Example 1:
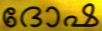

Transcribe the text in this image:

ദോഷ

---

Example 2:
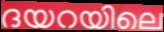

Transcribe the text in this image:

ദയറയിലെ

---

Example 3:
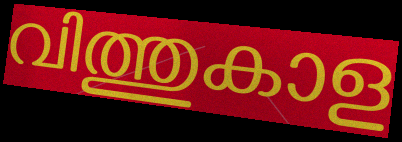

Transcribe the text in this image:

വിത്തുകാള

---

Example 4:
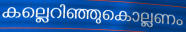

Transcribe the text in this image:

കല്ലെറിഞ്ഞുകൊല്ലണം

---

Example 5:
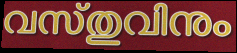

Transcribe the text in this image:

വസ്‌തുവിനും